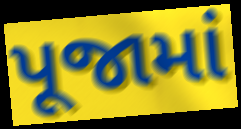
પૂજામાં